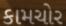
કામચોર